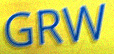
GRW